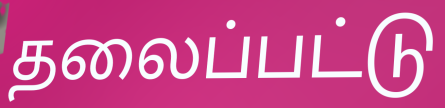
தலைப்பட்டு